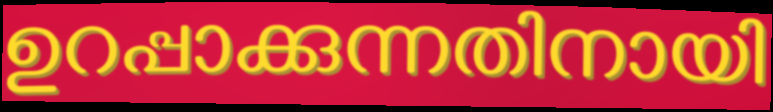
ഉറപ്പാക്കുന്നതിനായി